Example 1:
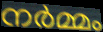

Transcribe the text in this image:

നർമ്മം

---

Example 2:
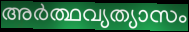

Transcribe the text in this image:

അർത്ഥവ്യത്യാസം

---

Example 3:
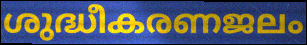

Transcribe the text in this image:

ശുദ്ധീകരണജലം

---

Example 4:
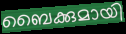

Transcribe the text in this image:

ബൈക്കുമായി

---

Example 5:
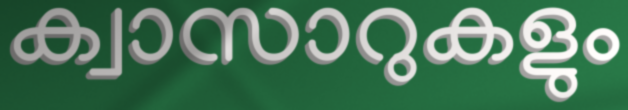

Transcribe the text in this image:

ക്വാസാറുകളും